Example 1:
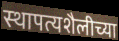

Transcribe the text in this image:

स्थापत्यशैलीच्या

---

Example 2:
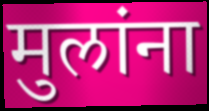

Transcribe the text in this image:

मुलांना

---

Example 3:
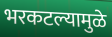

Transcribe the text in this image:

भरकटल्यामुळे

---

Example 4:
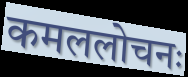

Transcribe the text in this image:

कमललोचनः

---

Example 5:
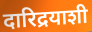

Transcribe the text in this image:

दारिद्रयाशी